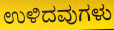
ಉಳಿದವುಗಳು